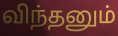
விந்தனும்